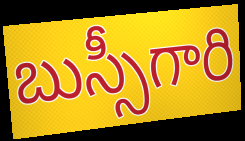
బుస్సీగారి